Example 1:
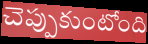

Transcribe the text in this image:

చెప్పుకుంటోంది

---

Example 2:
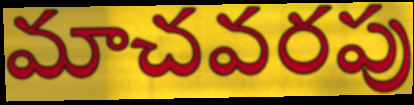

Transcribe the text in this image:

మాచవరపు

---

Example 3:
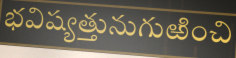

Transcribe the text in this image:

భవిష్యత్తునుగుఱించి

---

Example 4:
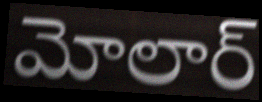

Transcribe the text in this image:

మోలార్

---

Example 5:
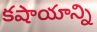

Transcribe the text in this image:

కషాయాన్ని